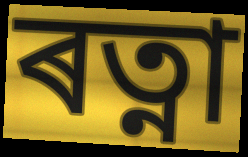
ৰত্না